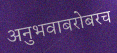
अनुभवाबरोबरच